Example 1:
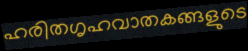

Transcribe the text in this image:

ഹരിതഗൃഹവാതകങ്ങളുടെ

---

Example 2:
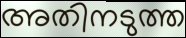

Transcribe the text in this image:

അതിനടുത്ത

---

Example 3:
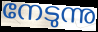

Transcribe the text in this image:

നേടുന്നു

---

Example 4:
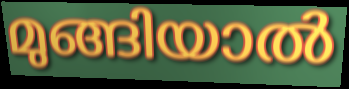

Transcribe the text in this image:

മുങ്ങിയാൽ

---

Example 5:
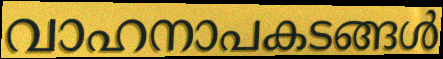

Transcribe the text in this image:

വാഹനാപകടങ്ങൾ